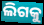
ଲିଗକୁ